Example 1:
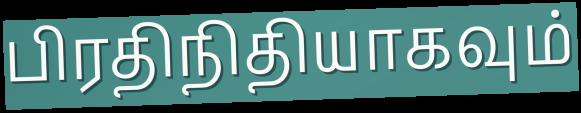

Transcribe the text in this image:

பிரதிநிதியாகவும்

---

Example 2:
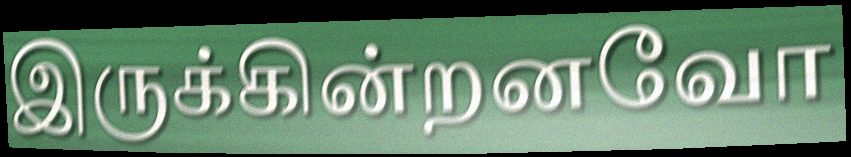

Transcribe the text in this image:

இருக்கின்றனவோ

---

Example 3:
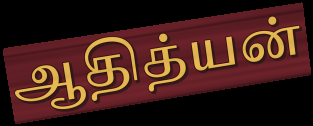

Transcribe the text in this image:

ஆதித்யன்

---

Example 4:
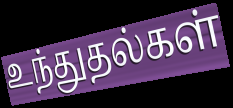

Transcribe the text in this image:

உந்துதல்கள்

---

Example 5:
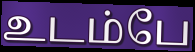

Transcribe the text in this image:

உடம்பே